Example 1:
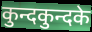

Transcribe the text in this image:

कुन्दकुन्दके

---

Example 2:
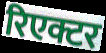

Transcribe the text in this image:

रिएक्टर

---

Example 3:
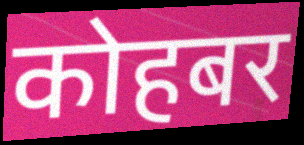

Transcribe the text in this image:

कोहबर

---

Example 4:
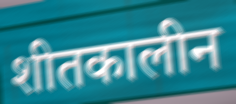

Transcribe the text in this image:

शीतकालीन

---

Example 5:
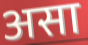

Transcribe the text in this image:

असा